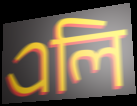
এলি